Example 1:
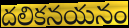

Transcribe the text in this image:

దలికనయనం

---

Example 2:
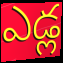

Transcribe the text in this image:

ఎడ్ల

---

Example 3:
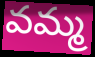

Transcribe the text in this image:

వమ్మ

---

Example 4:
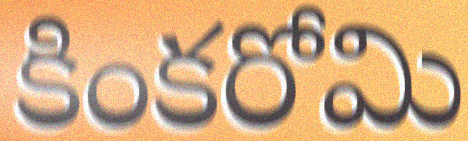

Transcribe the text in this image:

కింకరోమి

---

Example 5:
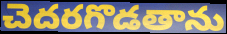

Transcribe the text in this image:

చెదరగొడతాను